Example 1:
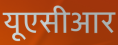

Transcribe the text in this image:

यूएसीआर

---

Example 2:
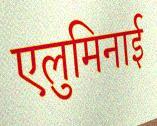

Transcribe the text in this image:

एलुमिनाई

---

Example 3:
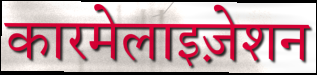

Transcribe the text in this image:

कारमेलाइज़ेशन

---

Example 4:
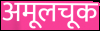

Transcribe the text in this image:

अमूलचूक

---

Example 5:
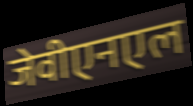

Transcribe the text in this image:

जेवीएनएल